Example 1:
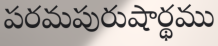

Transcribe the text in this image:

పరమపురుషార్థము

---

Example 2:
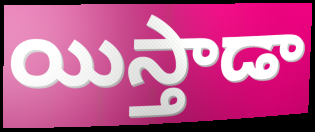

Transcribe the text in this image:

యిస్తాడా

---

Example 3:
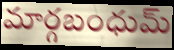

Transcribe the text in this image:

మార్గబంధుమ్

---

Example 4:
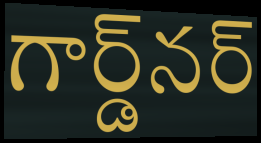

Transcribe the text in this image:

గార్డ్‌నర్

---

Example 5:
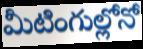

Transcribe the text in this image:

మీటింగుల్లోనో